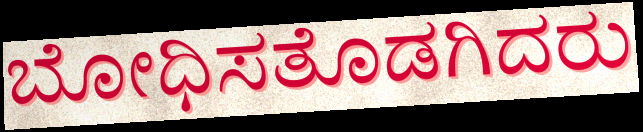
ಬೋಧಿಸತೊಡಗಿದರು